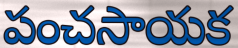
పంచసాయక